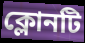
ক্লোনটি